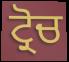
ਟ੍ਰੋਚ